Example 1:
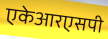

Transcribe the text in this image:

एकेआरएसपी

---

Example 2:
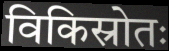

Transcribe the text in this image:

विकिस्रोतः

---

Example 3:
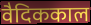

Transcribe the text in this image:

वैदिककाल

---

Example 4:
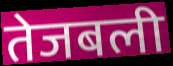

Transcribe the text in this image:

तेजबली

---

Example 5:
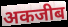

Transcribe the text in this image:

अकजीब